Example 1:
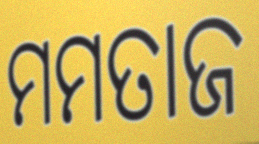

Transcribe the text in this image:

ମମତାଜ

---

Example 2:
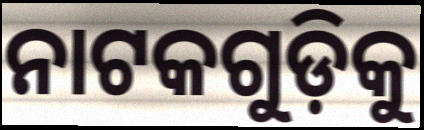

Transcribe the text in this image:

ନାଟକଗୁଡ଼ିକୁ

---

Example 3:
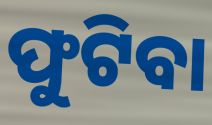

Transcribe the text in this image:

ଫୁଟିବା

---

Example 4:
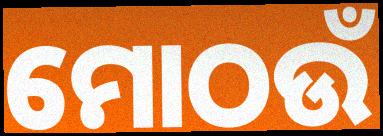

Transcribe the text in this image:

ମୋଠଉଁ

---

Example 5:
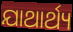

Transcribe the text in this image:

ଯାଥାର୍ଥ୍ୟ